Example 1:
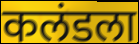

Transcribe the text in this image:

कलंडला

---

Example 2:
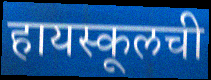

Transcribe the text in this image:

हायस्कूलची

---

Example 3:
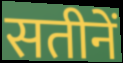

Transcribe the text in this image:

सतीनें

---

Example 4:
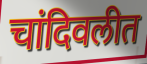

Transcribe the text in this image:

चांदिवलीत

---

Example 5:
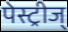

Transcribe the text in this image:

पेस्ट्रीज्